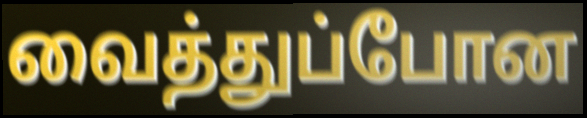
வைத்துப்போன